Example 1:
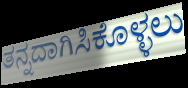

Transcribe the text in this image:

ತನ್ನದಾಗಿಸಿಕೊಳ್ಳಲು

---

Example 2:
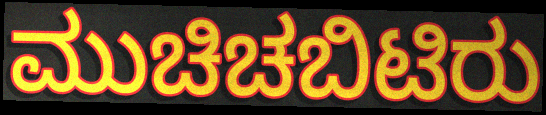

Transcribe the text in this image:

ಮುಚಿಚಬಿಟಿರು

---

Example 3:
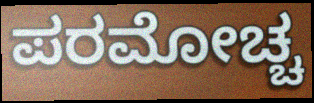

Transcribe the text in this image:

ಪರಮೋಚ್ಚ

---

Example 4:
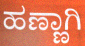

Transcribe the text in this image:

ಹಣ್ಣಾಗಿ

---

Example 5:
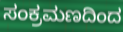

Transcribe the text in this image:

ಸಂಕ್ರಮಣದಿಂದ